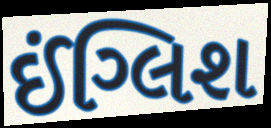
ઈંગ્લિશ